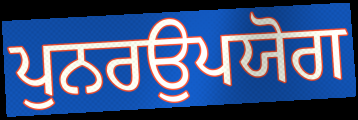
ਪੁਨਰਉਪਯੋਗ